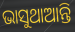
ଭାସୁଥାଆନ୍ତି